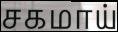
சகமாய்